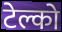
टेल्को